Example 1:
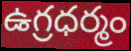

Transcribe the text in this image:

ఉగ్రధర్మం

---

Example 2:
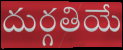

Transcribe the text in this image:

దుర్గతియే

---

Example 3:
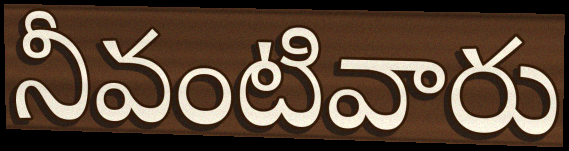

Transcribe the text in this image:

నీవంటివారు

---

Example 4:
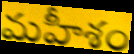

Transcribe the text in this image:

మహీశం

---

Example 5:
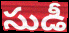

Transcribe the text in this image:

సుడీ